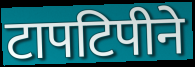
टापटिपीने